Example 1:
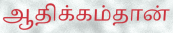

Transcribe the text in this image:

ஆதிக்கம்தான்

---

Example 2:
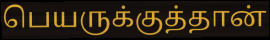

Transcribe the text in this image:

பெயருக்குத்தான்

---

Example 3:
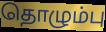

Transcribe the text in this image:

தொழும்பு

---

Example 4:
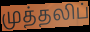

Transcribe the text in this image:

முத்தலிப்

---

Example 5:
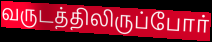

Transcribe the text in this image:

வருடத்திலிருப்போர்